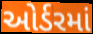
ઓર્ડરમાં